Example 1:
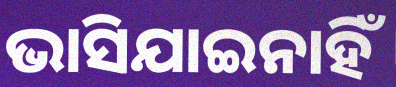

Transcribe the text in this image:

ଭାସିଯାଇନାହିଁ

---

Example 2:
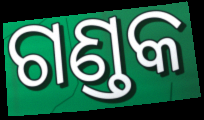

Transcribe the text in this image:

ଗଣ୍ଡକ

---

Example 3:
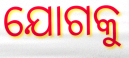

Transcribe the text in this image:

ଯୋଗକୁ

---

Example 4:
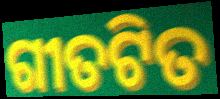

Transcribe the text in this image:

ଗୀତଟିତ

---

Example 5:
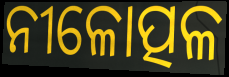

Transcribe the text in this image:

ନୀଳୋତ୍ପଳ